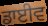
ਡਾਈਵ